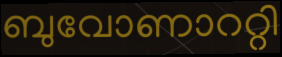
ബുവോണാററ്റി